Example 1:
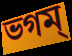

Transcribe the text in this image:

ভগম্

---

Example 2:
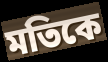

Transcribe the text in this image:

মতিকে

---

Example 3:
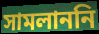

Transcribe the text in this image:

সামলাননি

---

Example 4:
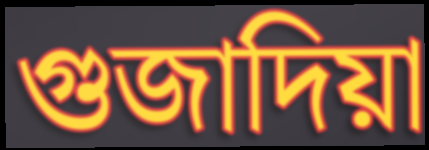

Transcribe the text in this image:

গুজাদিয়া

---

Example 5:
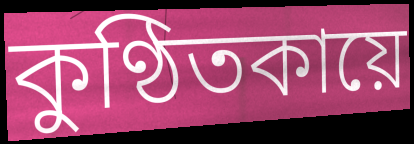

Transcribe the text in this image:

কুণ্ঠিতকায়ে